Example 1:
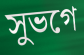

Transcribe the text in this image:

সুভগে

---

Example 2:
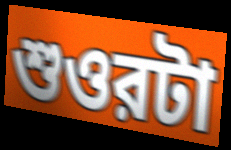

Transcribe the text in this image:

শুওরটা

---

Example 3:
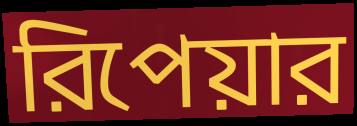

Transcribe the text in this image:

রিপেয়ার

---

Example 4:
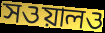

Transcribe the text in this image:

সওয়ালও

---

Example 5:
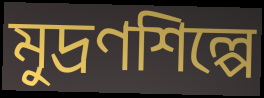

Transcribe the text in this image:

মুদ্রণশিল্পে